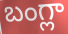
బంగ్లా